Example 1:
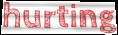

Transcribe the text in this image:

hurting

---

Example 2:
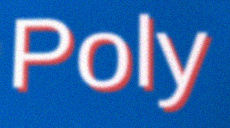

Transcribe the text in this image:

Poly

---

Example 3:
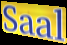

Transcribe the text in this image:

Saal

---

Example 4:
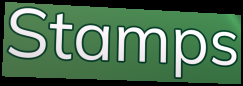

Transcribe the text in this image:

Stamps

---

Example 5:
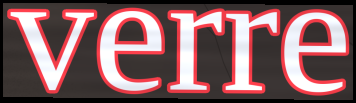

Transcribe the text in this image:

verre